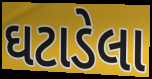
ઘટાડેલા